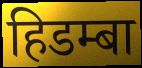
हिडम्बा